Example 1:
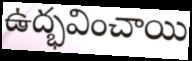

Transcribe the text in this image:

ఉద్భవించాయి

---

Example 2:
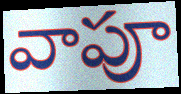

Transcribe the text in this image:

వాపూ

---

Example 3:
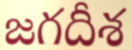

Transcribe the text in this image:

జగదీశ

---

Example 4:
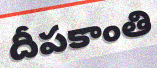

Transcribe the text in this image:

దీపకాంతి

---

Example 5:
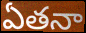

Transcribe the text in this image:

ఏతనా